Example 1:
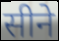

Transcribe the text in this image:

सीने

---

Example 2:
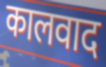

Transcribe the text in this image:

कालवाद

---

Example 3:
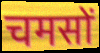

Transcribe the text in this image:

चमसों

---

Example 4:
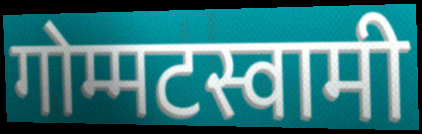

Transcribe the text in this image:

गोम्मटस्वामी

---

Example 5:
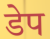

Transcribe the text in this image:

डेप